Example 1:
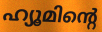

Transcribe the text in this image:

ഹ്യൂമിന്റെ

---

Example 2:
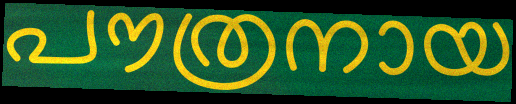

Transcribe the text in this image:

പൗത്രനായ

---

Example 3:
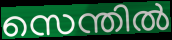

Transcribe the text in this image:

സെന്തിൽ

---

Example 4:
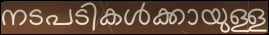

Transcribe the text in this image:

നടപടികൾക്കായുള്ള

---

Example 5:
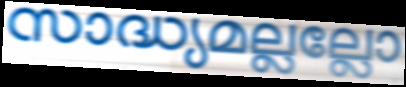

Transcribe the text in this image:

സാദ്ധ്യമല്ലല്ലോ